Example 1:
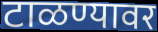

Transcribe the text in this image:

टाळण्यावर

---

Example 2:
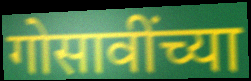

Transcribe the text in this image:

गोसावींच्या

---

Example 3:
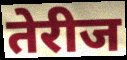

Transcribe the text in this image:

तेरीज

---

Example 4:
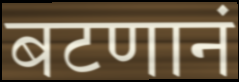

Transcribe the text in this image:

बटणानं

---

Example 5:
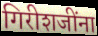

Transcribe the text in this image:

गिरीशजींना